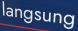
langsung